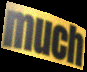
much